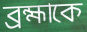
ব্রহ্মাকে